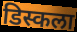
डिस्कला